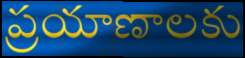
ప్రయాణాలకు